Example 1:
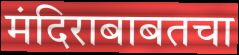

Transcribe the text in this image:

मंदिराबाबतचा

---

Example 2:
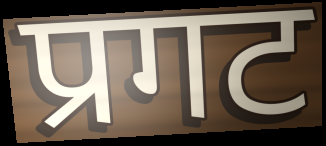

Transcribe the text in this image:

प्रगट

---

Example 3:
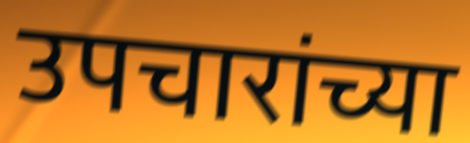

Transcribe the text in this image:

उपचारांच्या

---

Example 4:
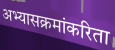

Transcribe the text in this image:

अभ्यासक्रमांकरिता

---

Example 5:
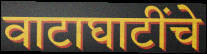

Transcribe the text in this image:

वाटाघाटींचे